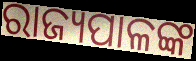
ରାଜ୍ୟପାଳଙ୍କ